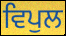
ਵਿਪੁਲ